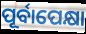
ପୂର୍ବାପେକ୍ଷା